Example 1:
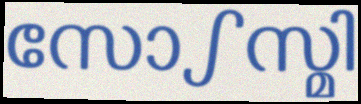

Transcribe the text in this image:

സോഽസ്മി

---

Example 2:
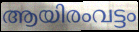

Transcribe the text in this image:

ആയിരംവട്ടം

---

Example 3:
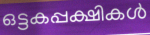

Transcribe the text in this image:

ഒട്ടകപ്പക്ഷികൾ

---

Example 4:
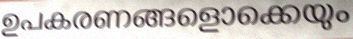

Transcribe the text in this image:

ഉപകരണങ്ങളൊക്കെയും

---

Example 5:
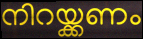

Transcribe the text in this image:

നിറയ്ക്കണം